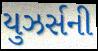
યુઝર્સની